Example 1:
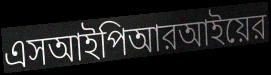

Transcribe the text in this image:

এসআইপিআরআইয়ের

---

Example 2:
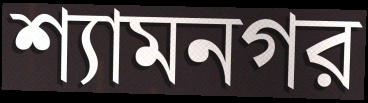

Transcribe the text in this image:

শ্যামনগর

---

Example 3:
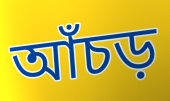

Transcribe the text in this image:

আঁচড়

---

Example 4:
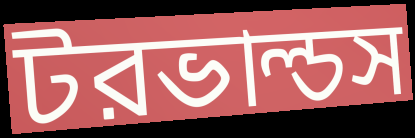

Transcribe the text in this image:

টরভাল্ডস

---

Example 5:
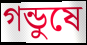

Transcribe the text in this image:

গন্ডুষে